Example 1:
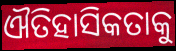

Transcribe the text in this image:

ଐତିହାସିକତାକୁ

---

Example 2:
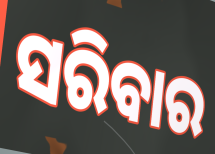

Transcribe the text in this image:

ସରିବାର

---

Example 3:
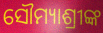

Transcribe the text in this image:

ସୌମ୍ୟାଶ୍ରୀଙ୍କ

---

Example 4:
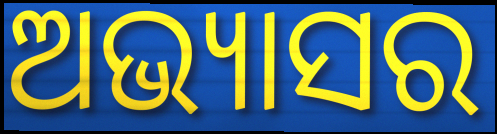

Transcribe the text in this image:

ଅଭ୍ୟାସର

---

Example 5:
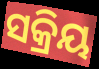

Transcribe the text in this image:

ସକ୍ରିୟ